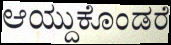
ಆಯ್ದುಕೊಂಡರೆ